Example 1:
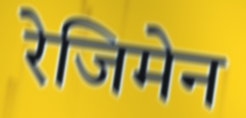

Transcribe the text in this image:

रेजिमेन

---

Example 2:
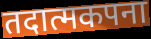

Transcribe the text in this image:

तदात्मकपना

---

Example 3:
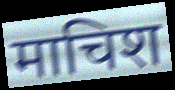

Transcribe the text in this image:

माचिश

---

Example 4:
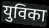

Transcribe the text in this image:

युविका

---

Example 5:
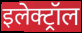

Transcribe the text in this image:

इलेक्ट्रॉल